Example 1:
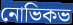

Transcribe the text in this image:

নোভিকভ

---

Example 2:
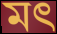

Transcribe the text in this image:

মৎ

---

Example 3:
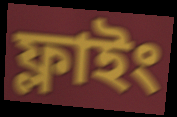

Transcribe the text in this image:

ফ্লাইং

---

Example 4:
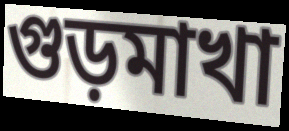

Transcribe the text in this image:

গুড়মাখা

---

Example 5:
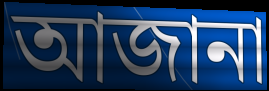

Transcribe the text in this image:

আজানা